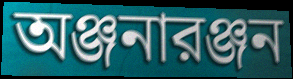
অঞ্জনারঞ্জন